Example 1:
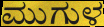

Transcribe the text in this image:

ಮುಗುಳ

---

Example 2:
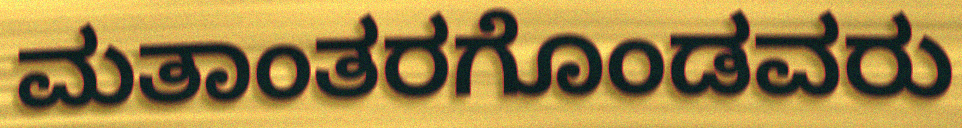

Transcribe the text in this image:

ಮತಾಂತರಗೊಂಡವರು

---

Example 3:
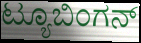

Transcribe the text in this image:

ಟ್ಯೂಬಿಂಗನ್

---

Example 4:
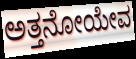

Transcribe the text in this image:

ಅತ್ತನೋಯೇವ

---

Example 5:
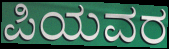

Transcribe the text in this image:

ಪಿಯವರ